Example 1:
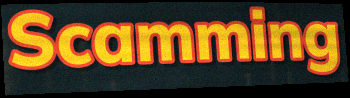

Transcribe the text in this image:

Scamming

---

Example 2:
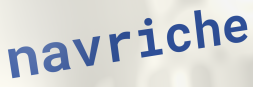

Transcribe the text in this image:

navriche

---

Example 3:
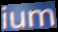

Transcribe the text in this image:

ium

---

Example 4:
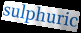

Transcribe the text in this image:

sulphuric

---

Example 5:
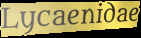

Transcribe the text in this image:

Lycaenidae